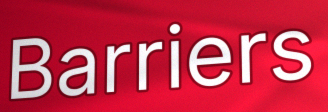
Barriers